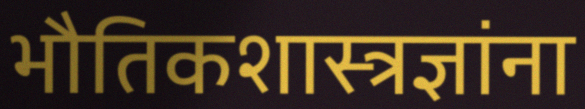
भौतिकशास्त्रज्ञांना